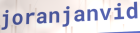
joranjanvid